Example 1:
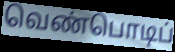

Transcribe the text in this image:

வெண்பொடிப்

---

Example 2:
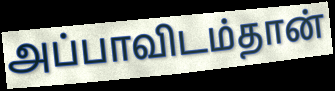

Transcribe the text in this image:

அப்பாவிடம்தான்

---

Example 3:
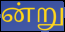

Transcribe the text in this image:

ன்று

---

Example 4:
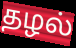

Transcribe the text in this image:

தழல்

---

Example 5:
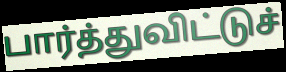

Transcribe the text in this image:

பார்த்துவிட்டுச்